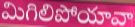
మిగిలిపోయావా